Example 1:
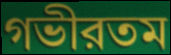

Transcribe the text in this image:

গভীরতম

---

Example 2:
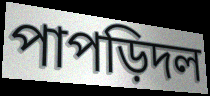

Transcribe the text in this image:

পাপড়িদল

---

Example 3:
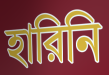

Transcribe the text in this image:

হারিনি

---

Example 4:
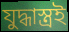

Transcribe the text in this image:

যুদ্ধাস্ত্রই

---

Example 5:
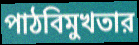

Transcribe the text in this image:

পাঠবিমুখতার